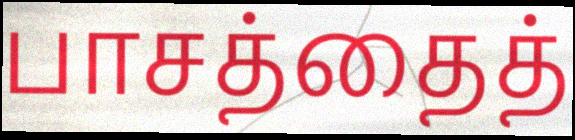
பாசத்தைத்